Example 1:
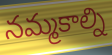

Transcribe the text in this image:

నమ్మకాల్ని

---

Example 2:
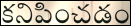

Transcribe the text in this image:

కనిపించడం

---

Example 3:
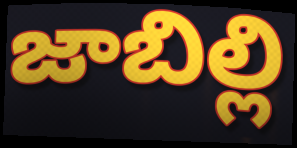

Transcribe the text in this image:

జాబిల్లి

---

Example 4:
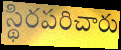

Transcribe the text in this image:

స్థిరపరిచారు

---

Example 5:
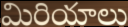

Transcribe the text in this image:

మిరియాలు